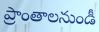
ప్రాంతాలనుండీ